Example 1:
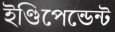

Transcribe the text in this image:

ইণ্ডিপেন্ডেন্ট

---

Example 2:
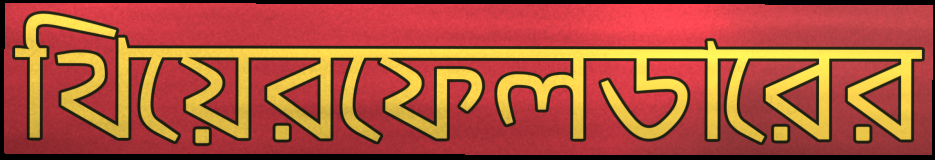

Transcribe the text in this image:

থিয়েরফেলডারের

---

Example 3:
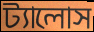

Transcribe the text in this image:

ট্যালোস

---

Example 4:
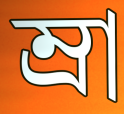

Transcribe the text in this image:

ম্রা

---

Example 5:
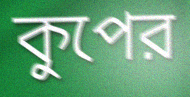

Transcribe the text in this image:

কুপের